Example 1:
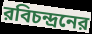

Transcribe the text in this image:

রবিচন্দ্রনের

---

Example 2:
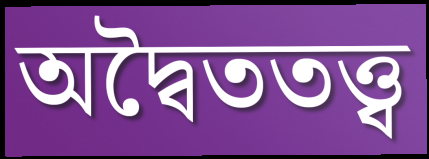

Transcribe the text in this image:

অদ্বৈততত্ত্ব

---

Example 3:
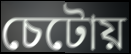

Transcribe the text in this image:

চেটোয়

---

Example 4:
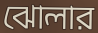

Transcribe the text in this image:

ঝোলার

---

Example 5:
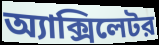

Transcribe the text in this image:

অ্যাক্সিলেটর